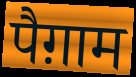
पैग़ाम